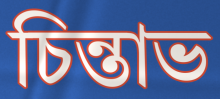
চিন্তাভ